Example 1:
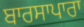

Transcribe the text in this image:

ਬਾਰਸਾਪਾਰਾ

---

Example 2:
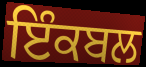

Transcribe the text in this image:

ਇੰਕਬਲ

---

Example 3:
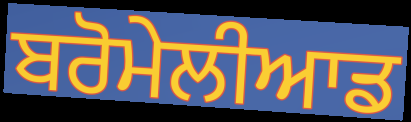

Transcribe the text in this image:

ਬਰੋਮੇਲੀਆਡ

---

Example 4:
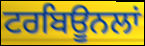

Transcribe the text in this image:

ਟਰਬਿਊਨਲਾਂ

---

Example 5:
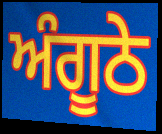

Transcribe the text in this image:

ਅੰਗੂਠੇ